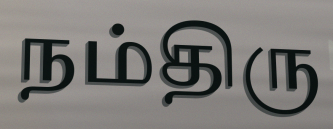
நம்திரு